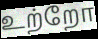
உற்றோ